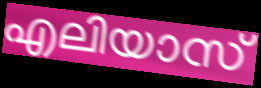
എലിയാസ്